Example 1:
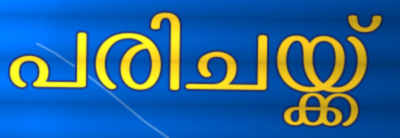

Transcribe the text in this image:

പരിചയ്ക്ക്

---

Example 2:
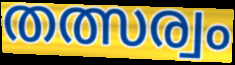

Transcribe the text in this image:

തത്സര്വം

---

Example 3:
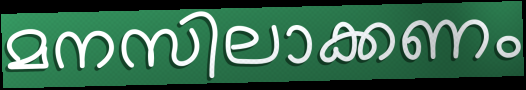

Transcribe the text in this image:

മനസിലാക്കണം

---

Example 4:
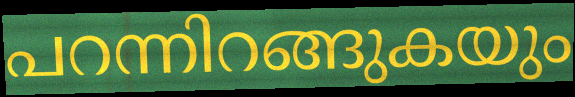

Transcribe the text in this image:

പറന്നിറങ്ങുകയും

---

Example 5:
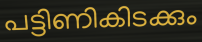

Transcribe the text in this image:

പട്ടിണികിടക്കും